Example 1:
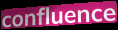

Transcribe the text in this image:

confluence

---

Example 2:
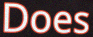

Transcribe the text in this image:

Does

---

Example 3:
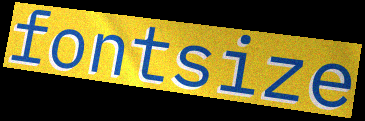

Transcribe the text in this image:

fontsize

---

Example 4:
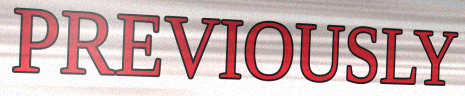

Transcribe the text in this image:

PREVIOUSLY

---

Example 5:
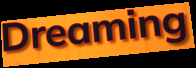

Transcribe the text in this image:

Dreaming